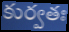
కుర్వతః